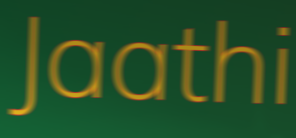
Jaathi